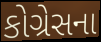
કોગ્રેસના